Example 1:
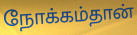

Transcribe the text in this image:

நோக்கம்தான்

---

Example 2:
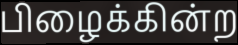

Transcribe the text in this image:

பிழைக்கின்ற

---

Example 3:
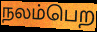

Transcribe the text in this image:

நலம்பெற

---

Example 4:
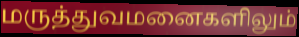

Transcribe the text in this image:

மருத்துவமனைகளிலும்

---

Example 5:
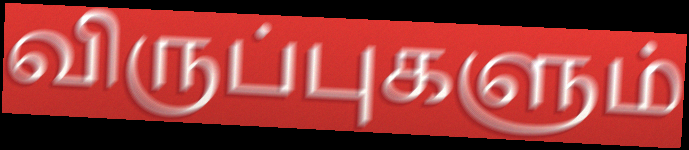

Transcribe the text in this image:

விருப்புகளும்